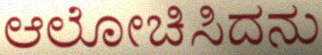
ಆಲೋಚಿಸಿದನು